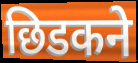
छिडकने